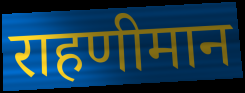
राहणीमान